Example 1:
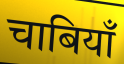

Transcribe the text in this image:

चाबियाँ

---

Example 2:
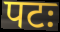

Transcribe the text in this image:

पटः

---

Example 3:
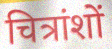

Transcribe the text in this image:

चित्रांशों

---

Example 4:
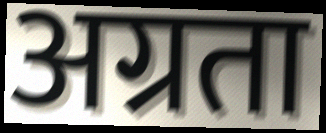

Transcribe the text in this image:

अग्रता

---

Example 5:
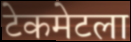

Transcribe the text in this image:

टेकमेटला